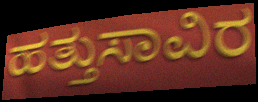
ಹತ್ತುಸಾವಿರ